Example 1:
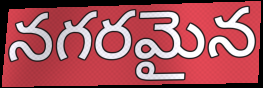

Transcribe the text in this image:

నగరమైన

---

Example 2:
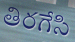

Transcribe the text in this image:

తిరగేసి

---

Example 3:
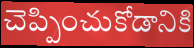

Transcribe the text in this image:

చెప్పించుకోడానికి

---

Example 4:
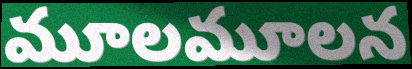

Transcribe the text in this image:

మూలమూలన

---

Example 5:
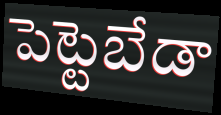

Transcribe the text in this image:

పెట్టెబేడా